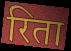
रिता